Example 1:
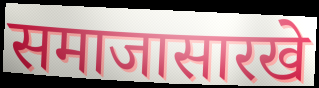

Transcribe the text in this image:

समाजासारखे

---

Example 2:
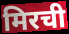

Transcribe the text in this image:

मिरची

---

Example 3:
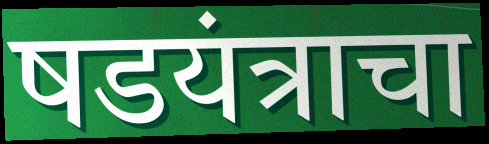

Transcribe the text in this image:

षडयंत्राचा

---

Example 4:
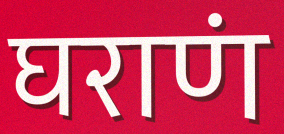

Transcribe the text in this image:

घराणं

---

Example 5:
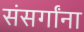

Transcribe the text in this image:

संसर्गांना